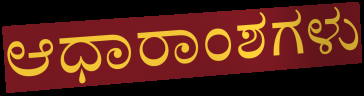
ಆಧಾರಾಂಶಗಳು